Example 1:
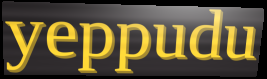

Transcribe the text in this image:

yeppudu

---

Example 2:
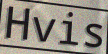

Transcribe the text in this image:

Hvis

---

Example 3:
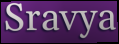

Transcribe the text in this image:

Sravya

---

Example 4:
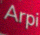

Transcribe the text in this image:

Arpi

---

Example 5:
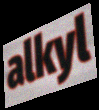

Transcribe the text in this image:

alkyl